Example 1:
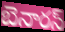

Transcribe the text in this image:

బెనారస్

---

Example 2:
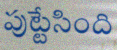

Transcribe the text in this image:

పుట్టేసింది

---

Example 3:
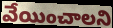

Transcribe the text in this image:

వేయించాలని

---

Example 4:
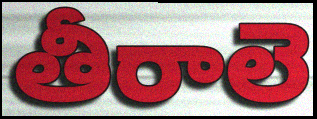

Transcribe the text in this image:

తీరాలె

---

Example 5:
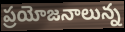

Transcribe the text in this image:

ప్రయోజనాలున్న